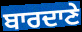
ਬਾਰਦਾਣੇ